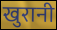
खुरानी